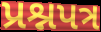
પ્રશ્નપત્ર